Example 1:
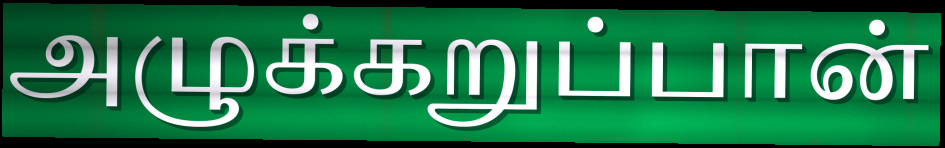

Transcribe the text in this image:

அழுக்கறுப்பான்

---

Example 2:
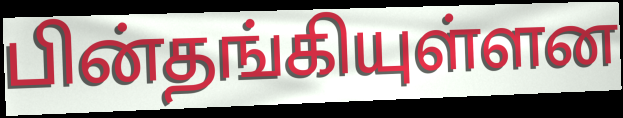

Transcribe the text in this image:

பின்தங்கியுள்ளன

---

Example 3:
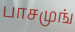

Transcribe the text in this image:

பாசமுங்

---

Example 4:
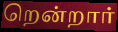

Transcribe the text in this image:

றென்றார்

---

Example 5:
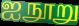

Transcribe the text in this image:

ஐநூறு